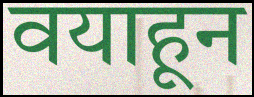
वयाहून